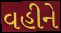
વહીને